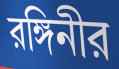
রঙ্গিনীর